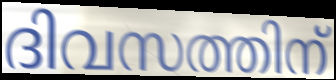
ദിവസത്തിന്